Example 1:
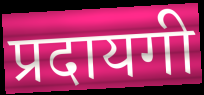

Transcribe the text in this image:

प्रदायगी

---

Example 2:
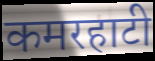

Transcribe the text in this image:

कमरहाटी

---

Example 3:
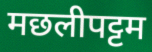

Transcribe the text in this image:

मछलीपट्टम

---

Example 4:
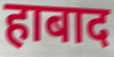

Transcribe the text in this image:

हाबाद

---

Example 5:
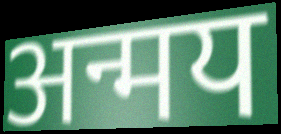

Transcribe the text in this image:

अन्मय